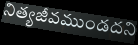
నిత్యజీవముండదని